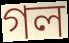
গল